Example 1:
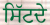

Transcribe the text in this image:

ਸਿੱਟਦੇ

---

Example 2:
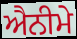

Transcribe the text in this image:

ਐਨੀਮੇ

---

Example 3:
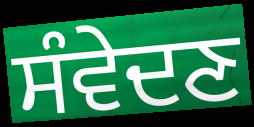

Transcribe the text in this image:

ਸੰਵੇਦਣ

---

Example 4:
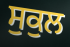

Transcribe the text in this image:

ਸੁਕੁਲ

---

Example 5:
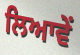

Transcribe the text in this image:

ਲਿਆਵੇਂ